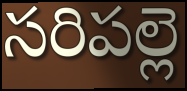
సరిపల్లె